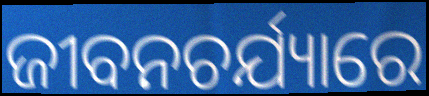
ଜୀବନଚର୍ଯ୍ୟାରେ